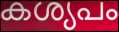
കശ്യപം